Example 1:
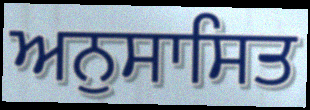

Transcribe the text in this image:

ਅਨੁਸਾਸਿਤ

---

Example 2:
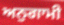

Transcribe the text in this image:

ਅਨੁਗਾਮੀ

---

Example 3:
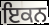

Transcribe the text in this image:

ਇਕਨ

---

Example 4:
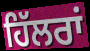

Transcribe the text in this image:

ਹਿੱਲਰਾਂ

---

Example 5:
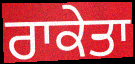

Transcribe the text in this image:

ਰਾਕੇਤਾ